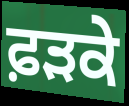
ਫ਼ਡ਼ਕੇ